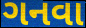
ગનવા